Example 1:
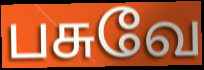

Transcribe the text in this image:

பசுவே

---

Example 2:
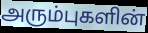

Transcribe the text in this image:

அரும்புகளின்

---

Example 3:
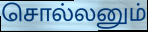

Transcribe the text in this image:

சொல்லனும்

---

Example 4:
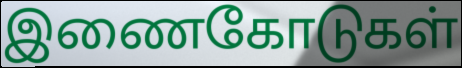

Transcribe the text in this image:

இணைகோடுகள்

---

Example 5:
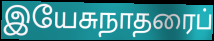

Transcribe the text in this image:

இயேசுநாதரைப்